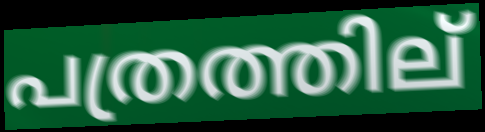
പത്രത്തില്